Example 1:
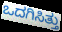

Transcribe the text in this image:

ಒದಗಿಸಿತ್ತು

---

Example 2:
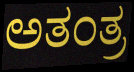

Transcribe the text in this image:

ಅತಂತ್ರ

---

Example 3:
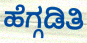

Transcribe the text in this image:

ಹೆಗ್ಗಡಿತಿ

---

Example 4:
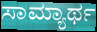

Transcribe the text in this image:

ಸಾಮ್ಯಾರ್ಥ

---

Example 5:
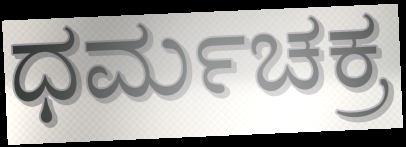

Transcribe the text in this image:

ಧರ್ಮಚಕ್ರ